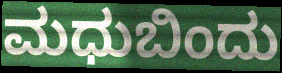
ಮಧುಬಿಂದು